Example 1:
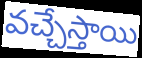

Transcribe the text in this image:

వచ్చేస్తాయి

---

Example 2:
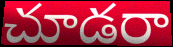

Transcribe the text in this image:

చూడరా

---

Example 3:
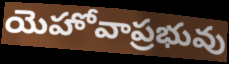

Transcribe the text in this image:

యెహోవాప్రభువు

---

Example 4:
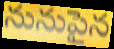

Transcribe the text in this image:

నునుపైన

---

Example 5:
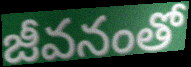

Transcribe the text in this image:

జీవనంతో